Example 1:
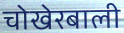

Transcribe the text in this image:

चोखेरबाली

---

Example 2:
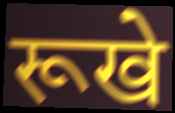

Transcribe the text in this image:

रूखे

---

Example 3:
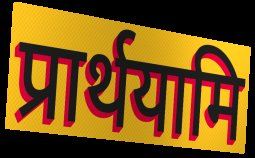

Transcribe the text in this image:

प्रार्थयामि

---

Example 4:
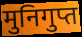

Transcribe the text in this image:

मुनिगुप्त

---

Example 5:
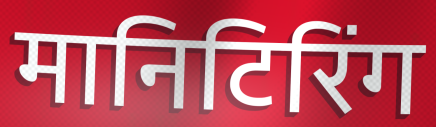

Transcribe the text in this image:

मानिटिरिंग